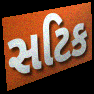
સટિક